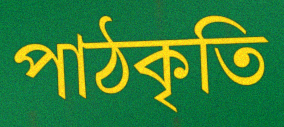
পাঠকৃতি